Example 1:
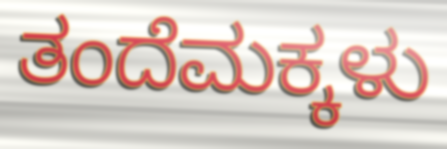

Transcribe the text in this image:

ತಂದೆಮಕ್ಕಳು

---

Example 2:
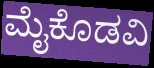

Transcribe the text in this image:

ಮೈಕೊಡವಿ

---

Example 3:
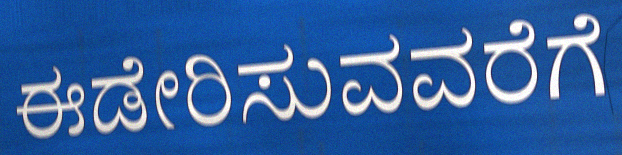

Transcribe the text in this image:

ಈಡೇರಿಸುವವರೆಗೆ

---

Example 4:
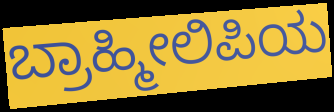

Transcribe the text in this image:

ಬ್ರಾಹ್ಮೀಲಿಪಿಯ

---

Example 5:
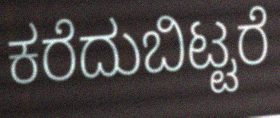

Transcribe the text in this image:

ಕರೆದುಬಿಟ್ಟರೆ